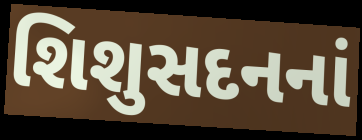
શિશુસદનનાં